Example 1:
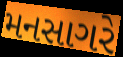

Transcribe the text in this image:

મનસાગરે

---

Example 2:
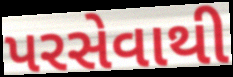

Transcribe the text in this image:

પરસેવાથી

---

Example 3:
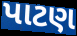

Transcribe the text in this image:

પાટણ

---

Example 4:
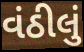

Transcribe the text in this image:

વંઠીલું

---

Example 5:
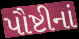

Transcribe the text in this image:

પૌષ્ટીનાં